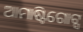
ଆମାଷ୍ଟିଗୋଟ୍ସ